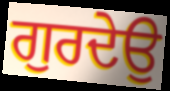
ਗੁਰਦੇਉ